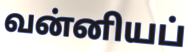
வன்னியப்